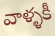
వాళ్ళకీ